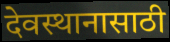
देवस्थानासाठी